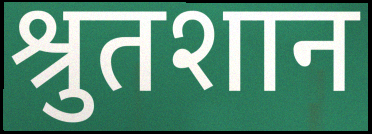
श्रुतशान